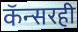
कॅन्सरही